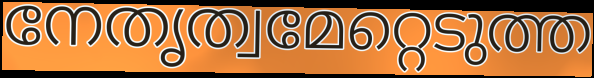
നേതൃത്വമേറ്റെടുത്ത